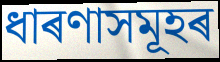
ধাৰণাসমূহৰ